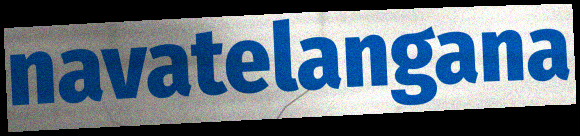
navatelangana